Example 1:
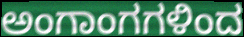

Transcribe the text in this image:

ಅಂಗಾಂಗಗಳಿಂದ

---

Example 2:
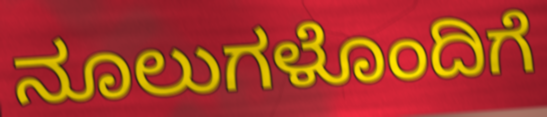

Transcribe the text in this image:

ನೂಲುಗಳೊಂದಿಗೆ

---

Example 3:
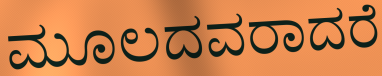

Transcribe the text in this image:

ಮೂಲದವರಾದರೆ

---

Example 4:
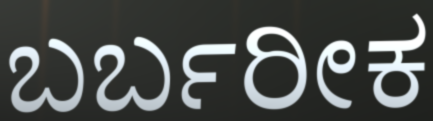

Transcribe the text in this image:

ಬರ್ಬರೀಕ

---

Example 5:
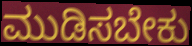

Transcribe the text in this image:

ಮುಡಿಸಬೇಕು